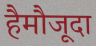
हैमौजूदा